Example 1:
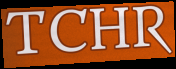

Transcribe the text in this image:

TCHR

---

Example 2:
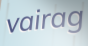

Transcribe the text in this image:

vairag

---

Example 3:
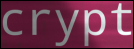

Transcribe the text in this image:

crypt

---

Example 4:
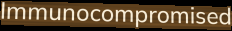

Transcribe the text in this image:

Immunocompromised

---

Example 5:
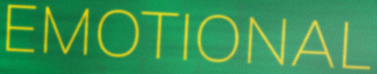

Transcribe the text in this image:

EMOTIONAL